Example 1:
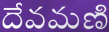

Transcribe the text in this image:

దేవమణి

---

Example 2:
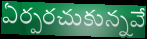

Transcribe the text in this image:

ఏర్పరచుకున్నవే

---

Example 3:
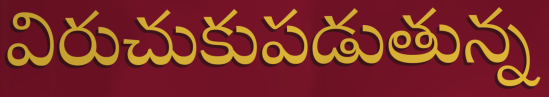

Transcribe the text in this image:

విరుచుకుపడుతున్న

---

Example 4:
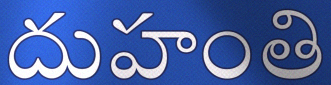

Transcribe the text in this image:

దుహంతి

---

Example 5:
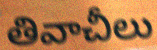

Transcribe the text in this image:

తివాచీలు